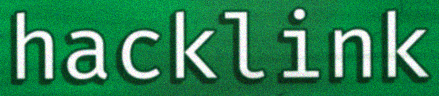
hacklink